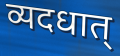
व्यदधात्